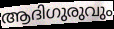
ആദിഗുരുവും